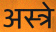
अस्त्रे